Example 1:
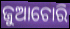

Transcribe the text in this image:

ଜୁଆଚୋରି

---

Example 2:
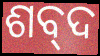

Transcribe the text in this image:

ଶବ୍‍ଦ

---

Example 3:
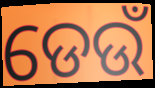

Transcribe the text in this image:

ଡେଉଁ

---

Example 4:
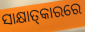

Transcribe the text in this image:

ସାକ୍ଷାତ୍‌କାରରେ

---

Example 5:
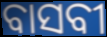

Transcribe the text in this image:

ବାସବୀ